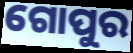
ଗୋପୁର